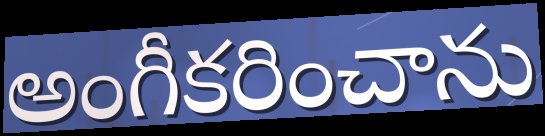
అంగీకరించాను